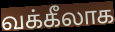
வக்கீலாக